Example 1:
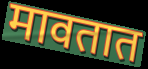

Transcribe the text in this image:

मावतात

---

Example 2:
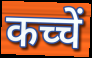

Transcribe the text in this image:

कच्चें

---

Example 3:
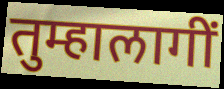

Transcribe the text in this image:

तुम्हालागीं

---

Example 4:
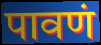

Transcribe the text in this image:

पावणं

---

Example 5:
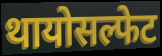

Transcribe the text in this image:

थायोसल्फेट